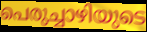
പെരുച്ചാഴിയുടെ